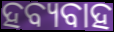
ହବ୍ୟବାହ